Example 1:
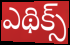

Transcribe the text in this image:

ఎథిక్స్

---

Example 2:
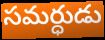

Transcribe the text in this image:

సమర్ధుడు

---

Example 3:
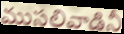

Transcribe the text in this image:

ముసలివాడినీ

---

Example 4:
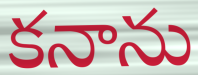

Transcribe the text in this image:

కనాను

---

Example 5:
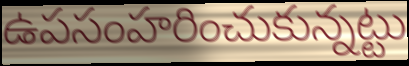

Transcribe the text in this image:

ఉపసంహరించుకున్నట్టు